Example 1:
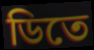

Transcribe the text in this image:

ডিতে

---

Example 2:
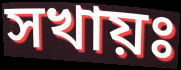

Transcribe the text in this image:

সখায়ঃ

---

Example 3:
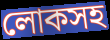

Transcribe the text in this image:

লোকসহ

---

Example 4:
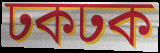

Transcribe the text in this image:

ঢকঢক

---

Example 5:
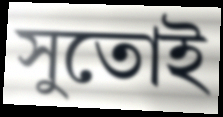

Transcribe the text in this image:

সুতোই